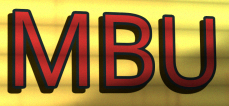
MBU